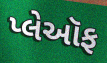
પ્લેઑફ